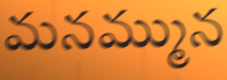
మనమ్మున